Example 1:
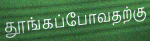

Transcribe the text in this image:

தூங்கப்போவதற்கு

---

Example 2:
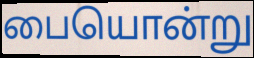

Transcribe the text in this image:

பையொன்று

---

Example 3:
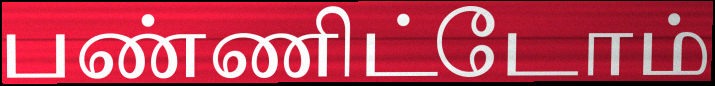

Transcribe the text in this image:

பண்ணிட்டோம்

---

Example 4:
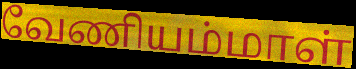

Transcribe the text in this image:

வேணியம்மாள்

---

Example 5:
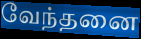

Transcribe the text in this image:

வேந்தனை